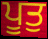
ਪੂਤੁ